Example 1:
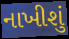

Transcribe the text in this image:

નાખીશું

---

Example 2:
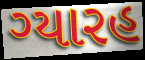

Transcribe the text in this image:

ગ્યારહ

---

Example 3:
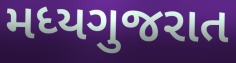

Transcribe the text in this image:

મધ્યગુજરાત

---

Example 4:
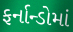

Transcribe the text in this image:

ફર્નાન્ડોમાં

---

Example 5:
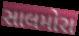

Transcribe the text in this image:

સાલમોરા